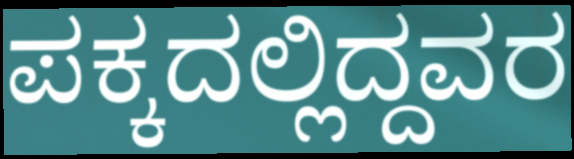
ಪಕ್ಕದಲ್ಲಿದ್ದವರ